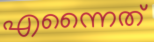
എന്നൈത്